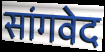
सांगवेद